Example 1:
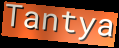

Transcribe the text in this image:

Tantya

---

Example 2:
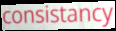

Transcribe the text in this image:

consistancy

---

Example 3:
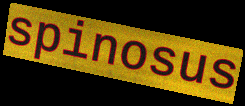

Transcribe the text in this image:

spinosus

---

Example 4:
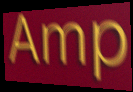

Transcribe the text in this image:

Amp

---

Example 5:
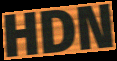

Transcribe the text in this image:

HDN